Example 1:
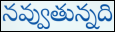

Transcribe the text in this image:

నవ్వుతున్నది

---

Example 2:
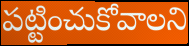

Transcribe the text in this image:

పట్టించుకోవాలని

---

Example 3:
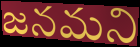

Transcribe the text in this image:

జనమని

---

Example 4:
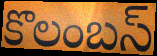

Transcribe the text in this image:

కొలంబస్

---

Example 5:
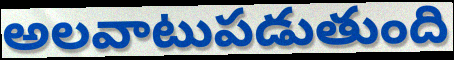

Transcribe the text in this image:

అలవాటుపడుతుంది